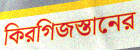
কিরগিজস্তানের